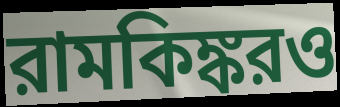
রামকিঙ্করও